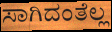
ಸಾಗಿದಂತೆಲ್ಲ